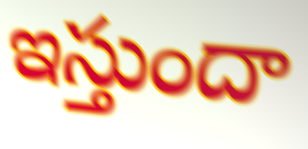
ఇస్తుందా